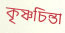
কৃষ্ণচিন্তা